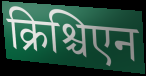
क्रिश्चिएन